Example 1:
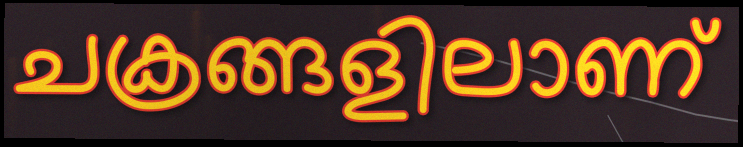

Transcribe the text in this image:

ചക്രങ്ങളിലാണ്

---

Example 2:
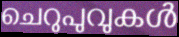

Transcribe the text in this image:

ചെറുപുവുകൾ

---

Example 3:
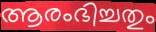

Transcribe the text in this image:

ആരംഭിച്ചതും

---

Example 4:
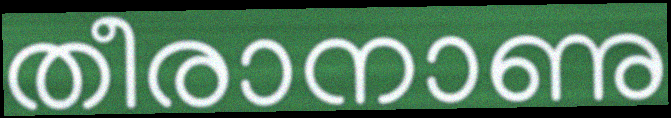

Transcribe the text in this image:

തീരാനാണു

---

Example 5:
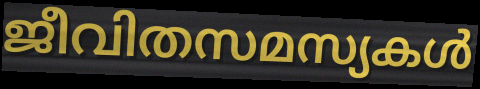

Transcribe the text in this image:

ജീവിതസമസ്യകൾ